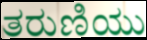
ತರುಣಿಯು